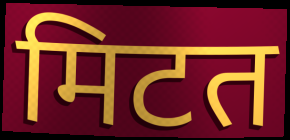
मिटत